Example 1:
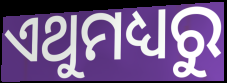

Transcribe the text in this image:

ଏଥୁମଧ୍ୟରୁ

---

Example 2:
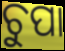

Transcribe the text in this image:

ଚୁପା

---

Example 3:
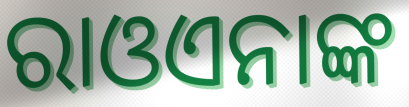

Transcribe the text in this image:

ରାଓଏନାଙ୍କ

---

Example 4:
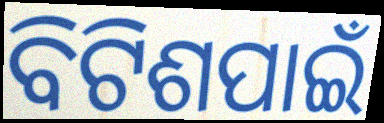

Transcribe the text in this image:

ବିଟିଶପାଇଁ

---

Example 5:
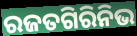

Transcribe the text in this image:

ରଜତଗିରିନିଭ